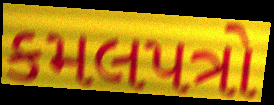
કમલપત્રો